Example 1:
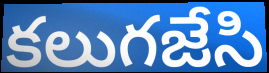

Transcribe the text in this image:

కలుగజేసి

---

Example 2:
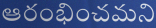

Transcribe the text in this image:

ఆరంభించమని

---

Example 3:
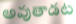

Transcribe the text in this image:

అవుతాడట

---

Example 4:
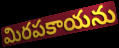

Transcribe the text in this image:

మిరపకాయను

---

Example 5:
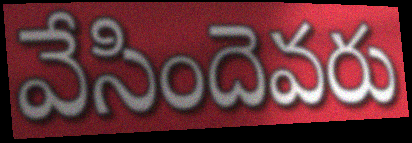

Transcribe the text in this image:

వేసిందెవరు